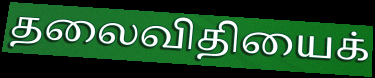
தலைவிதியைக்